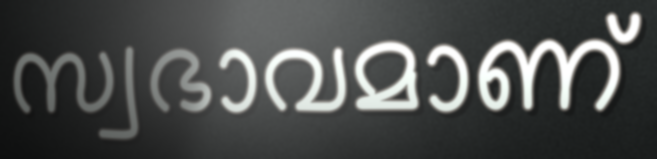
സ്വഭാവമാണ്